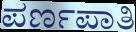
ಪರ್ಣಪಾತಿ